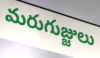
మరుగుజ్జులు